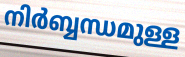
നിർബ്ബന്ധമുള്ള